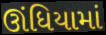
ઊંધિયામાં